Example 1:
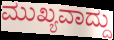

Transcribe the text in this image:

ಮುಖ್ಯವಾದ್ದು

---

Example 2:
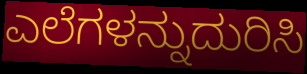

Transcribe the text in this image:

ಎಲೆಗಳನ್ನುದುರಿಸಿ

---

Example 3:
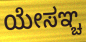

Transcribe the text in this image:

ಯೇಸಞ್ಚ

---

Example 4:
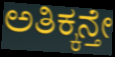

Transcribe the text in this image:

ಅತಿಕ್ಕನ್ತೇ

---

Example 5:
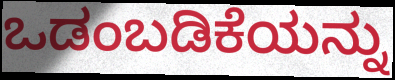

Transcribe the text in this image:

ಒಡಂಬಡಿಕೆಯನ್ನು